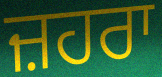
ਜ਼ਹਰਾ